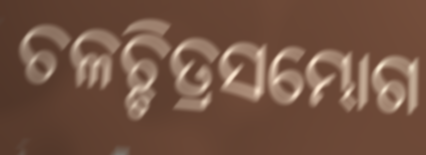
ଚଳଚ୍ଚିତ୍ରସମ୍ଭୋଗ